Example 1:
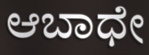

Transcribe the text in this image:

ಆಬಾಧೇ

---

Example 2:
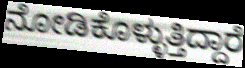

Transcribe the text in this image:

ನೋಡಿಕೊಳ್ಳುತ್ತಿದ್ದಾರೆ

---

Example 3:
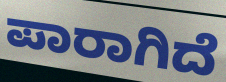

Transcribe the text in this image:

ಪಾರಾಗಿದೆ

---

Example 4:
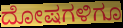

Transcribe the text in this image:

ದೋಷಗಳಿಗೂ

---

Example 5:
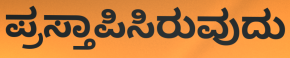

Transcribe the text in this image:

ಪ್ರಸ್ತಾಪಿಸಿರುವುದು